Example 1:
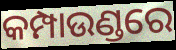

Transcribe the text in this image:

କମ୍ପାଉଣ୍ଡରେ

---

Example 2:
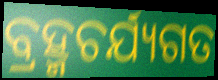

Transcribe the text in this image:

ବ୍ରହ୍ମଚର୍ଯ୍ୟଗତ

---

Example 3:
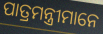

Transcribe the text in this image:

ପାତ୍ରମନ୍ତ୍ରୀମାନେ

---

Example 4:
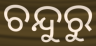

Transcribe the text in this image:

ଚନ୍ଦୁରୁ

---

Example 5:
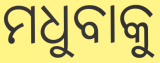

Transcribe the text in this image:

ମଧୁବାକୁ